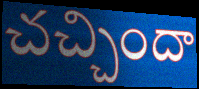
చచ్చిందా